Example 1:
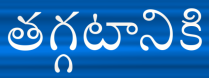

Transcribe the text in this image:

తగ్గటానికి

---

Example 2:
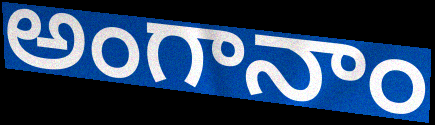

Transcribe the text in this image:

అంగానాం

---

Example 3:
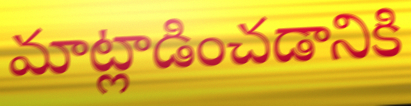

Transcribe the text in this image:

మాట్లాడించడానికి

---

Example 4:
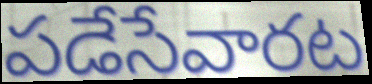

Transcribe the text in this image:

పడేసేవారట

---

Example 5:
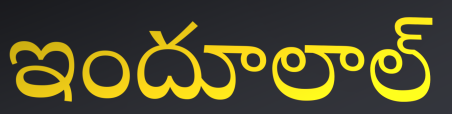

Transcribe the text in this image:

ఇందూలాల్